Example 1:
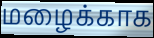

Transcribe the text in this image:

மழைக்காக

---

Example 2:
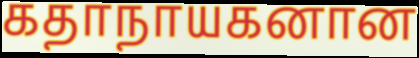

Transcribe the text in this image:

கதாநாயகனான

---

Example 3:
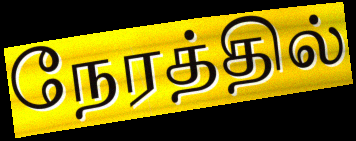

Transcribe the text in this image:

நேரத்தில்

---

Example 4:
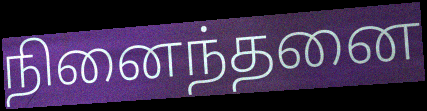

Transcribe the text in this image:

நினைந்தனை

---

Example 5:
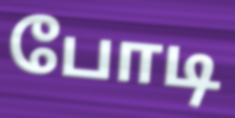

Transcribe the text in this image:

போடி